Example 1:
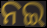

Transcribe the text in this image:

ନଇ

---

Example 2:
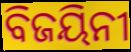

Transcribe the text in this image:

ବିଜୟିନୀ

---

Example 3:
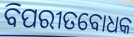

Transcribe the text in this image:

ବିପରୀତବୋଧକ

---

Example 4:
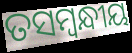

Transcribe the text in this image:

ତସମ୍ବନ୍ଧୀୟ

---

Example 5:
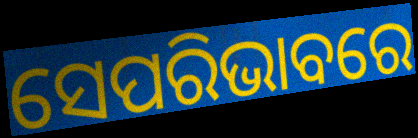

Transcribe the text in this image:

ସେପରିଭାବରେ